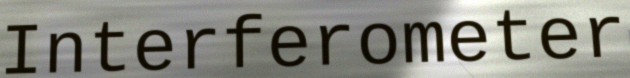
Interferometer